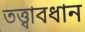
তত্ত্বাবধান